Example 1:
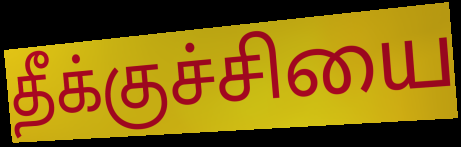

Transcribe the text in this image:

தீக்குச்சியை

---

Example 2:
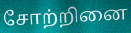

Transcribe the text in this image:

சோற்றினை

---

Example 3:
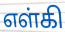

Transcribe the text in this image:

எள்கி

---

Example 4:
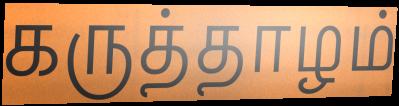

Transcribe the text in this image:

கருத்தாழம்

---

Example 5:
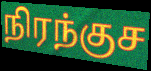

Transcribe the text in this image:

நிரந்குச